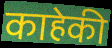
काहेकी